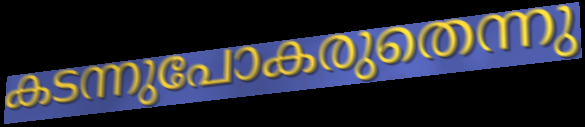
കടന്നുപോകരുതെന്നു